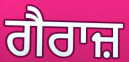
ਗੈਰਾਜ਼